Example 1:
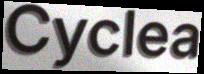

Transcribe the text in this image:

Cyclea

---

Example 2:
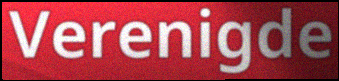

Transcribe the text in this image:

Verenigde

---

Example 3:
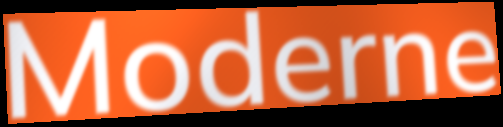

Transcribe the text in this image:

Moderne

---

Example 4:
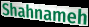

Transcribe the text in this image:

Shahnameh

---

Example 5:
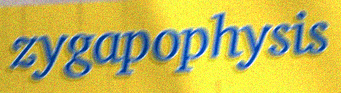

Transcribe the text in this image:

zygapophysis